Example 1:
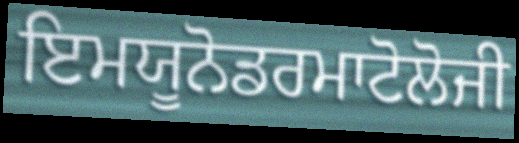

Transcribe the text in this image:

ਇਮਯੂਨੋਡਰਮਾਟੋਲੋਜੀ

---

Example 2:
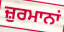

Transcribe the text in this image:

ਜ਼ੁਰਮਾਨਾਂ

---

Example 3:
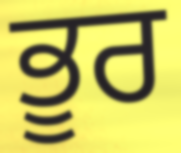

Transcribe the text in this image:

ਭੂਰ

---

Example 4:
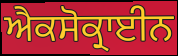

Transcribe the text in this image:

ਐਕਸੋਕ੍ਰਾਈਨ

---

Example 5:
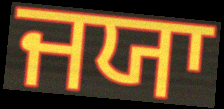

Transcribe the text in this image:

ਜਯਾ